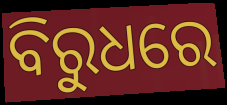
ବିରୁଧରେ